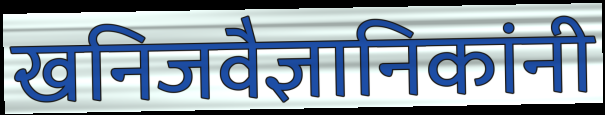
खनिजवैज्ञानिकांनी